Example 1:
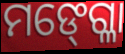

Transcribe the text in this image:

ମଙ୍ଗ୍ଳୋ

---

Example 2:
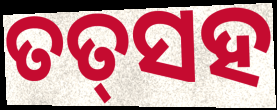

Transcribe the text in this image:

ତତ୍‌ସହ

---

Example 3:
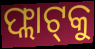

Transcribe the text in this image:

ଫ୍ଲାଟ୍‌କୁ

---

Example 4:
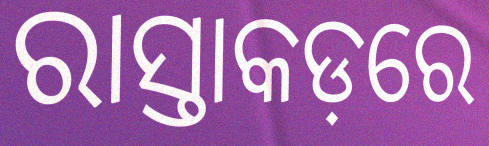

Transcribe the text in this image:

ରାସ୍ତାକଡ଼ରେ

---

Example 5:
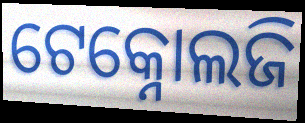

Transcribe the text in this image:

ଟେକ୍ନୋଲଜି